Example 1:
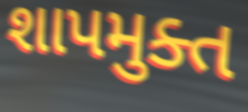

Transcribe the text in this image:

શાપમુક્ત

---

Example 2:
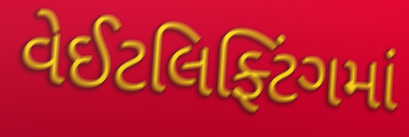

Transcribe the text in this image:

વેઈટલિફ્ટિંગમાં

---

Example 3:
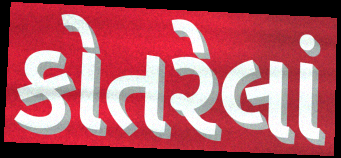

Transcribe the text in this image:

કોતરેલાં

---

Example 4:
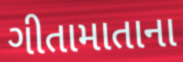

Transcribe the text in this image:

ગીતામાતાના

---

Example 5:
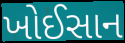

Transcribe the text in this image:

ખોઈસાન